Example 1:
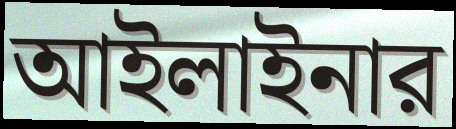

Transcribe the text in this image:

আইলাইনার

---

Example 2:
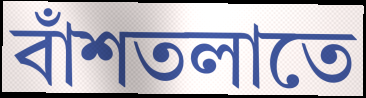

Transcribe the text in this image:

বাঁশতলাতে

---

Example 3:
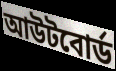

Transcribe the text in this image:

আউটবোর্ড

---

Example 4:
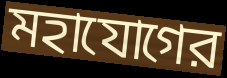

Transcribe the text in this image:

মহাযোগের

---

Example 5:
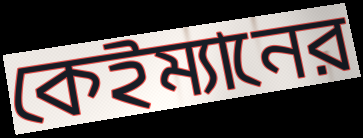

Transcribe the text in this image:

কেইম্যানের